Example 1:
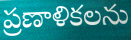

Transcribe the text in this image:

ప్రణాళికలను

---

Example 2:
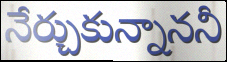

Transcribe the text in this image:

నేర్చుకున్నాననీ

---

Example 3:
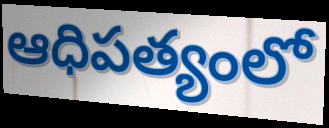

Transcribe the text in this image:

ఆధిపత్యంలో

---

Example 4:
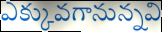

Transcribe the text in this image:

ఎక్కువగానున్నవి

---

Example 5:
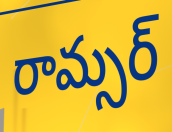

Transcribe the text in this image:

రామ్సర్